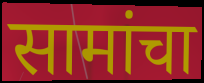
सामांचा